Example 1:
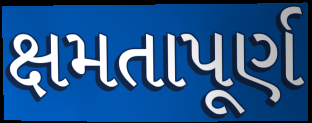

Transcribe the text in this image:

ક્ષમતાપૂર્ણ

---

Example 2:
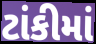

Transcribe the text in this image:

ટાંકીમાં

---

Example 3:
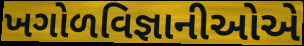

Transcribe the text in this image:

ખગોળવિજ્ઞાનીઓએ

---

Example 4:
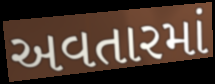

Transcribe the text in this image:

અવતારમાં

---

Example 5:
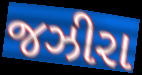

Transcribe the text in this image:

જઝીરા